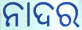
ନାଦର